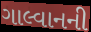
ગાલ્વાનની